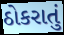
ઠોકરાતું